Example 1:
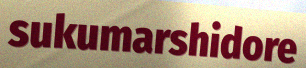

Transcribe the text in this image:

sukumarshidore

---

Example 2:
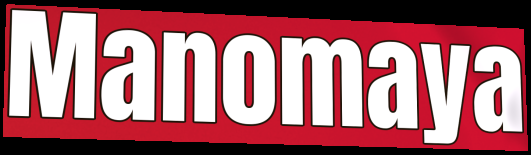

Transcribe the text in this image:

Manomaya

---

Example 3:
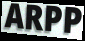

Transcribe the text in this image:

ARPP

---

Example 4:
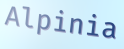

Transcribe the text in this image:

Alpinia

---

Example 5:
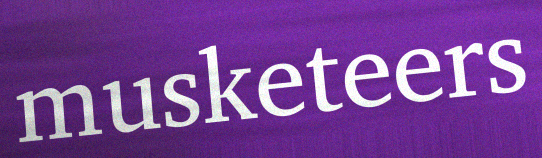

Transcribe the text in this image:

musketeers